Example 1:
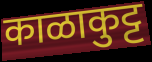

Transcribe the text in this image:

काळाकुट्ट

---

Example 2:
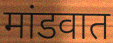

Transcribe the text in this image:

मांडवात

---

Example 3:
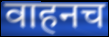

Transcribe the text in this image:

वाहनच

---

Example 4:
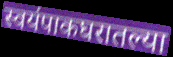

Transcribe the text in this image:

स्वयंपाकघरातल्या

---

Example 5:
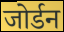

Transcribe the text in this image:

जोर्डन